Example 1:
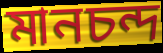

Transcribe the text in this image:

মানচন্দ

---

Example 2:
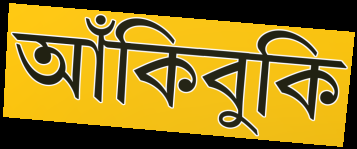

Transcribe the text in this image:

আঁকিবুকি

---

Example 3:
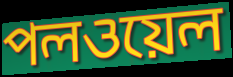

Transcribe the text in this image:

পলওয়েল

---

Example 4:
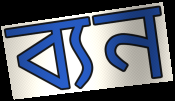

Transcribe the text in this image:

ব্যন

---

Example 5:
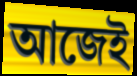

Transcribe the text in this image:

আজেই